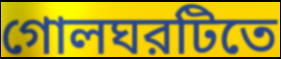
গোলঘরটিতে